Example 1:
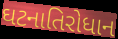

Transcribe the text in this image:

ઘટનાતિરોધાન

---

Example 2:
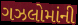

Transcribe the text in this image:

ગઝલોમાંની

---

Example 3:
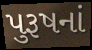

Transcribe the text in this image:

પુરૂષનાં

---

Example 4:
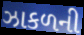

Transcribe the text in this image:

ઝાકળની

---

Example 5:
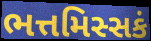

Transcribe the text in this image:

ભત્તમિસ્સકં